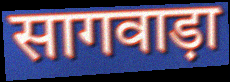
सागवाड़ा